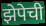
झेपेची